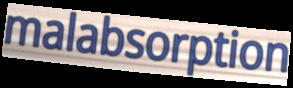
malabsorption